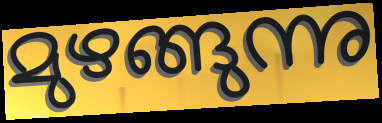
മുഴങ്ങുന്നു